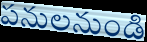
పనులనుండి